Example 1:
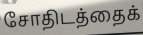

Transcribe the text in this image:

சோதிடத்தைக்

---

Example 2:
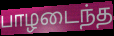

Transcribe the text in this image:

பாழடைந்த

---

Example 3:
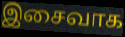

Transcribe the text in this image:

இசைவாக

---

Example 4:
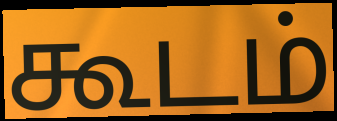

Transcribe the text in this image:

கூடம்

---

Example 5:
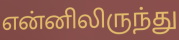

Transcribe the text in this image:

என்னிலிருந்து